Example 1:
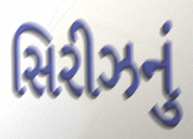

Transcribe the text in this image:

સિરીઝનું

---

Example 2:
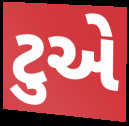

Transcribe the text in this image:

ટુએ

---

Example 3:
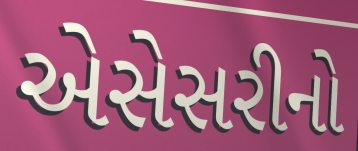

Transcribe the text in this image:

એસેસરીનો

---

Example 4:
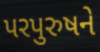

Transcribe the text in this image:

પરપુરુષને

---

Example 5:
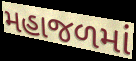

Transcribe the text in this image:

મહાજળમાં